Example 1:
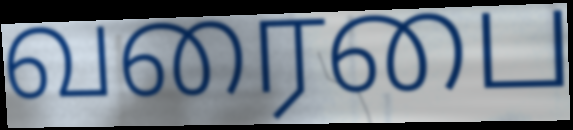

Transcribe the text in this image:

வரைபை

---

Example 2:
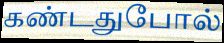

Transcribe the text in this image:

கண்டதுபோல்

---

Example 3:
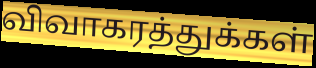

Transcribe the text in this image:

விவாகரத்துக்கள்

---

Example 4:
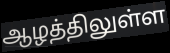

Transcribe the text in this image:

ஆழத்திலுள்ள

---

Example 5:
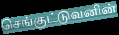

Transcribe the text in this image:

செங்குட்டுவனின்